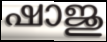
ഷാജു